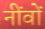
नींवों